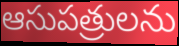
ఆసుపత్రులను